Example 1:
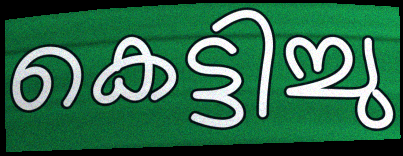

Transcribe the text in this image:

കെട്ടിച്ചു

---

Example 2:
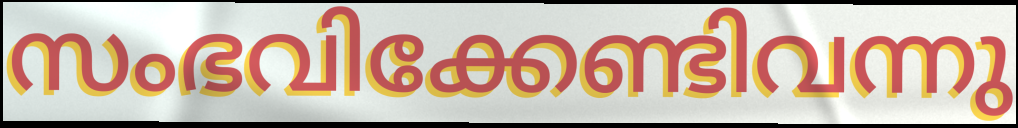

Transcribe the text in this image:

സംഭവിക്കേണ്ടിവന്നു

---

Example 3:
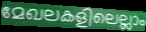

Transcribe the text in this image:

മേഖലകളിലെല്ലാം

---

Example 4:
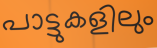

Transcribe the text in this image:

പാട്ടുകളിലും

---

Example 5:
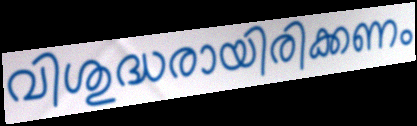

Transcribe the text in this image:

വിശുദ്ധരായിരിക്കണം